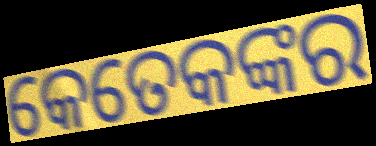
କେତେକଙ୍କର